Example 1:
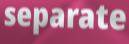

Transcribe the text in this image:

separate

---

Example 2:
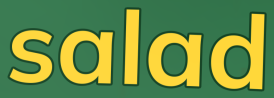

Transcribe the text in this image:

salad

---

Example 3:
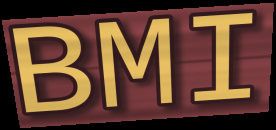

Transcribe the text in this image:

BMI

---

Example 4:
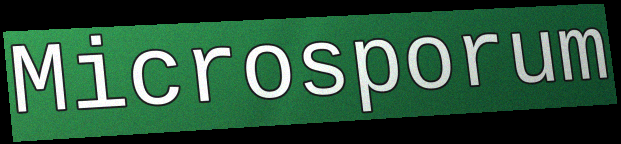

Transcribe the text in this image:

Microsporum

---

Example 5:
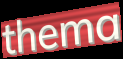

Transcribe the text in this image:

thema